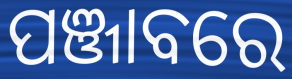
ପଞ୍ଜାବରେ